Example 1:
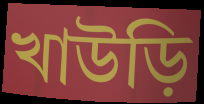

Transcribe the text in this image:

খাউড়ি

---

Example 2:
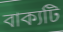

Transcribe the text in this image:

বাক্যটি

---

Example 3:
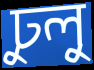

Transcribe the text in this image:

ঢুলু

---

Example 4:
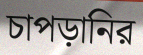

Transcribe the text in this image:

চাপড়ানির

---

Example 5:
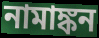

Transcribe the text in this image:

নামাঙ্কন